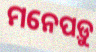
ମନେପଡ଼ୁ